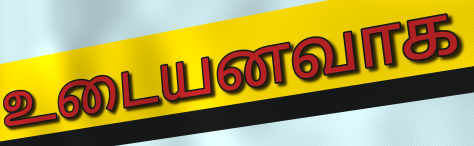
உடையனவாக